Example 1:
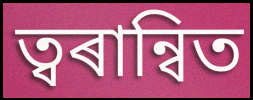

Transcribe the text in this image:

ত্বৰান্বিত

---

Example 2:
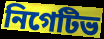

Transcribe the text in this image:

নিগেটিভ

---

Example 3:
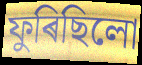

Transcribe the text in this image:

ফুৰিছিলো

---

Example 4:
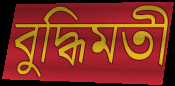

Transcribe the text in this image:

বুদ্ধিমতী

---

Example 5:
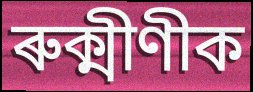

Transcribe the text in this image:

ৰুক্মীণীক